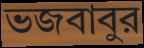
ভজবাবুর